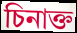
চিনাক্ত